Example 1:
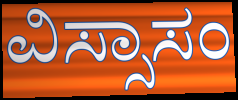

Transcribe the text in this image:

ವಿಸ್ಸಾಸಂ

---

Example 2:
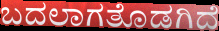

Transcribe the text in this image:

ಬದಲಾಗತೊಡಗಿದೆ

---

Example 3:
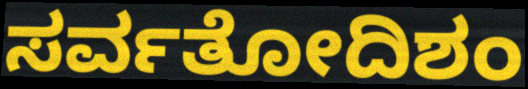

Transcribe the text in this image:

ಸರ್ವತೋದಿಶಂ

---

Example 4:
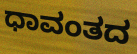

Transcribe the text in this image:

ಧಾವಂತದ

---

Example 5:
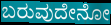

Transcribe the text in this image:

ಬರುವುದೇನೋ